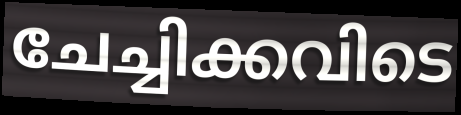
ചേച്ചിക്കവിടെ